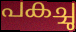
പകച്ചു